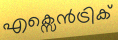
എക്സെൻട്രിക്